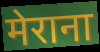
मेराना